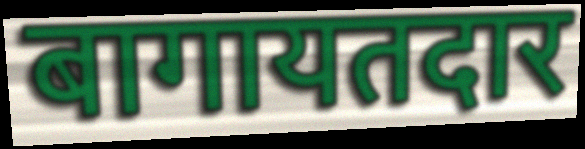
बागायतदार